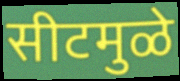
सीटमुळे